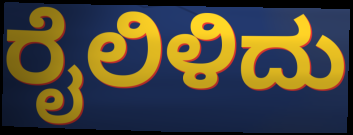
ರೈಲಿಳಿದು